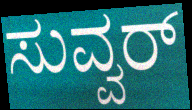
ಸುವ್ವರ್